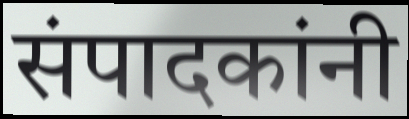
संपादकांनी